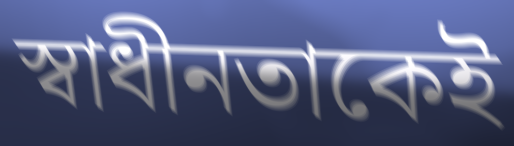
স্বাধীনতাকেই